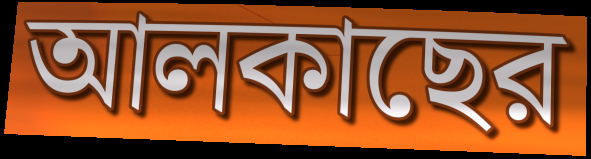
আলকাছের